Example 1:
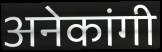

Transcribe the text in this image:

अनेकांगी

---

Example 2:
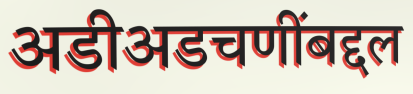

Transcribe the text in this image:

अडीअडचणींबद्दल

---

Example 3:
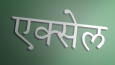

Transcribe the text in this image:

एक्सेल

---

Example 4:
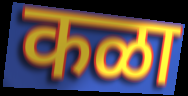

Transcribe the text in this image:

कळा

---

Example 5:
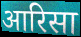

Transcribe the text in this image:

आरिसा